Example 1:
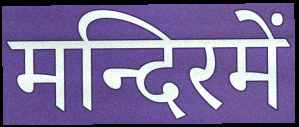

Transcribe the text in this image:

मन्दिरमें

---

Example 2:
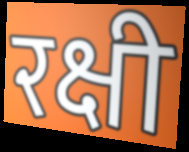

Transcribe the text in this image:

रक्षी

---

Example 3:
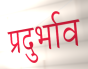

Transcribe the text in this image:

प्रदुर्भाव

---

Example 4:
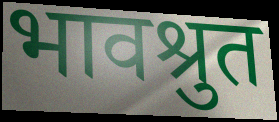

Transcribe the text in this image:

भावश्रुत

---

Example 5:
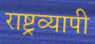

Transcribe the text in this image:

राष्ट्रव्यापी